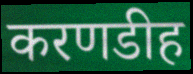
करणडीह